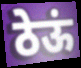
ठेऊं